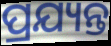
ପ୍ରଯ୍ୟନ୍ତ